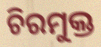
ଚିରମୁକ୍ତ